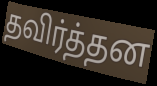
தவிர்த்தன